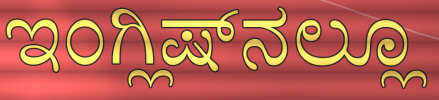
ಇಂಗ್ಲಿಷ್‌ನಲ್ಲೂ